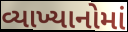
વ્યાખ્યાનોમાં